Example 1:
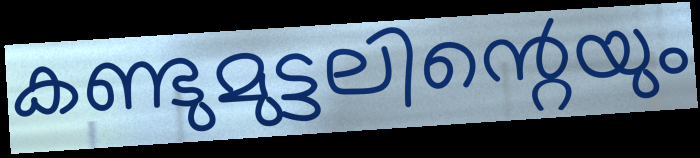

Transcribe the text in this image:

കണ്ടുമുട്ടലിന്റെയും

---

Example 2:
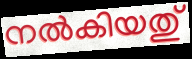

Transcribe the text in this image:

നൽകിയതു്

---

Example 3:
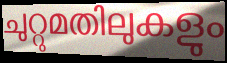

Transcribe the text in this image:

ചുറ്റുമതിലുകളും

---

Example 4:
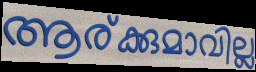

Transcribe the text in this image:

ആര്ക്കുമാവില്ല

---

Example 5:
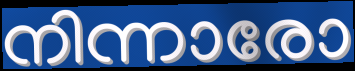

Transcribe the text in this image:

നിന്നാരോ